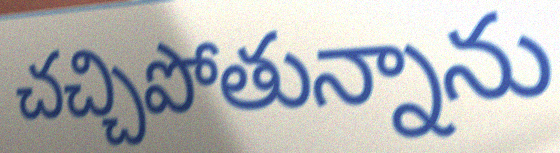
చచ్చిపోతున్నాను